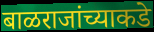
बाळराजांच्याकडे